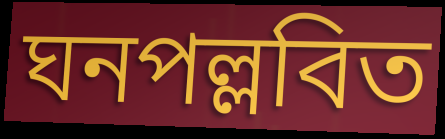
ঘনপল্লবিত